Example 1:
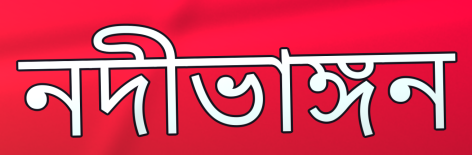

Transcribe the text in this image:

নদীভাঙ্গন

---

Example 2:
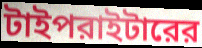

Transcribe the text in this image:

টাইপরাইটারের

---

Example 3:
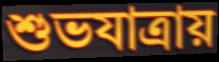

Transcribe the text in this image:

শুভযাত্রায়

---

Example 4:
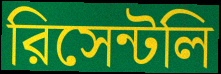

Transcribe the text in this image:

রিসেন্টলি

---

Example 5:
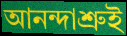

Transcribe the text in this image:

আনন্দাশ্রুই